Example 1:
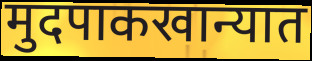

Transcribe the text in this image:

मुदपाकखान्यात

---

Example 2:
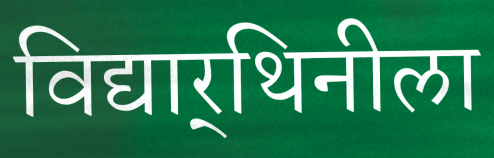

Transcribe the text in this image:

विद्यार्थिनीला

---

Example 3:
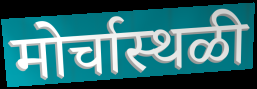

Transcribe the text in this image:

मोर्चास्थळी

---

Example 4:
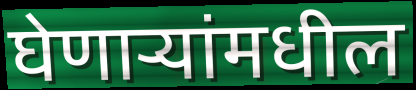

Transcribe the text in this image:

घेणाऱ्यांमधील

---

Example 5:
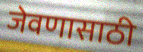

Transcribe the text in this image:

जेवणासाठी